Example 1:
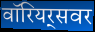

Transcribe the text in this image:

वॉरियर्सवर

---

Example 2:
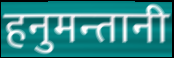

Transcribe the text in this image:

हनुमन्तानी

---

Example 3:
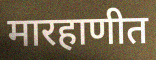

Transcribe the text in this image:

मारहाणीत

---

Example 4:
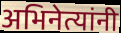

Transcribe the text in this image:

अभिनेत्यांनी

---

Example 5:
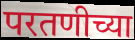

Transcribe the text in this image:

परतणीच्या